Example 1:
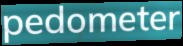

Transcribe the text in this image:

pedometer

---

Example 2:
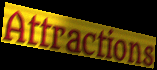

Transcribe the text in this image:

Attractions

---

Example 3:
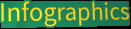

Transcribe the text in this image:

Infographics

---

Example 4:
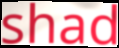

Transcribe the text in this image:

shad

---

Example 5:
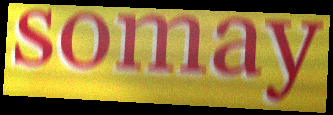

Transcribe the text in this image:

somay